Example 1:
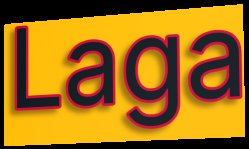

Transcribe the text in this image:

Laga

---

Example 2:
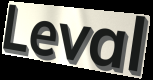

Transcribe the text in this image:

Leval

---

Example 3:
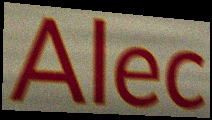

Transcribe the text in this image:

Alec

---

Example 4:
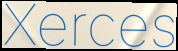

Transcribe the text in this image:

Xerces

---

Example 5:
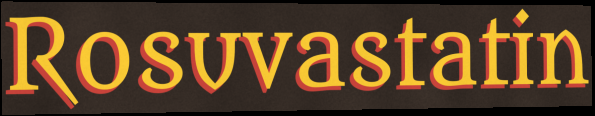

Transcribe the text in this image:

Rosuvastatin